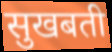
सुखबती